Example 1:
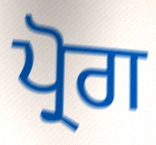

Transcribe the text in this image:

ਪ੍ਰੋਗ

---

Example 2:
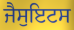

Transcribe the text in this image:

ਜੈਸੁਇਟਸ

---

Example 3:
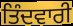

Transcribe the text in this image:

ਤਿੰਦਵਾਰੀ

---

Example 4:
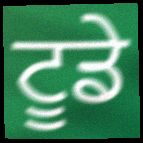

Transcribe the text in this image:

ਟੂਡੇ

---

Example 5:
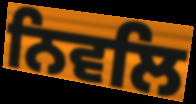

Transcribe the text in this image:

ਨਿਵਲਿ